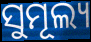
ସୁମୂଲ୍ୟ